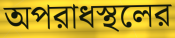
অপরাধস্থলের